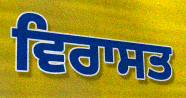
ਵਿਰਾਸਤ